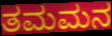
ತಮಮನ